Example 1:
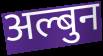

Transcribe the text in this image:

अल्बुन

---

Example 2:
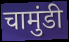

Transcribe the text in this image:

चामुंडी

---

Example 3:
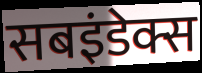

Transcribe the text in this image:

सबइंडेक्स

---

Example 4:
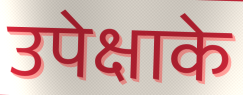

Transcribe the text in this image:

उपेक्षाके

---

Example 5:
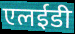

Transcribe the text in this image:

एलईडी